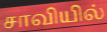
சாவியில்